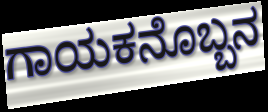
ಗಾಯಕನೊಬ್ಬನ